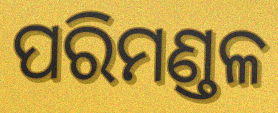
ପରିମଣ୍ଡଳ